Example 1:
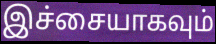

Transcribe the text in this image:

இச்சையாகவும்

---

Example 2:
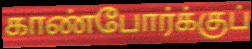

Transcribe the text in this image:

காண்போர்க்குப்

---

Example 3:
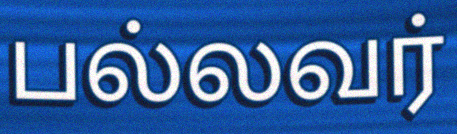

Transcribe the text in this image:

பல்லவர்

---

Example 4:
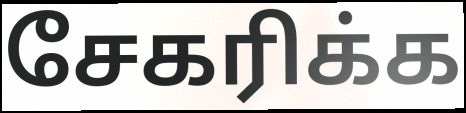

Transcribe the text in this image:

சேகரிக்க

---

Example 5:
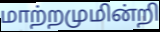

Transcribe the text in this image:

மாற்றமுமின்றி